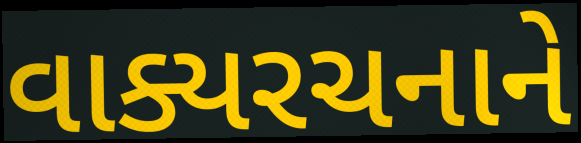
વાક્યરચનાને